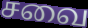
சவை